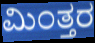
ಮಿಂತ್ತರ